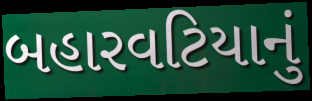
બહારવટિયાનું